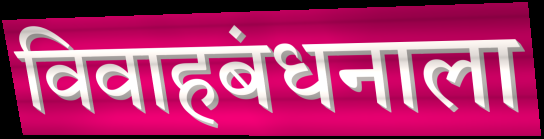
विवाहबंधनाला